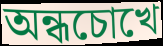
অন্ধচোখে